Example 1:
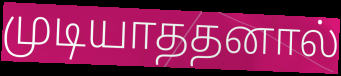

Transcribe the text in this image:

முடியாததனால்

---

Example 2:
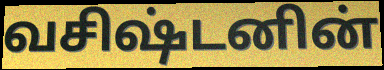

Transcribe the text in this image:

வசிஷ்டனின்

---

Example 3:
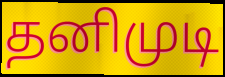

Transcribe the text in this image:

தனிமுடி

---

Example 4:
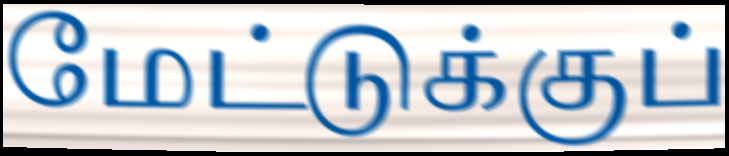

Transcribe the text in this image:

மேட்டுக்குப்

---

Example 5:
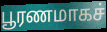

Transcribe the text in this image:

பூரணமாகச்